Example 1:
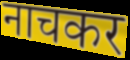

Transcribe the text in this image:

नाचकर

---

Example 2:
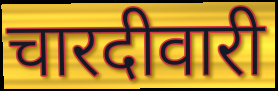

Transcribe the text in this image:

चारदीवारी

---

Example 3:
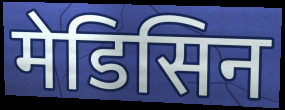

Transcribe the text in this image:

मेडिसिन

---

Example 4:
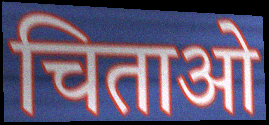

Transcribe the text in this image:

चिताओ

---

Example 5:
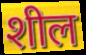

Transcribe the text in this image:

शील